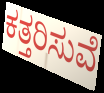
ಕತ್ತರಿಸುವೆ